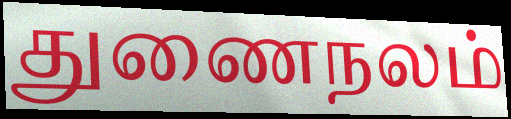
துணைநலம்